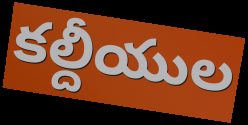
కల్దీయుల